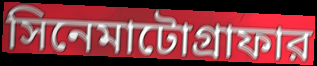
সিনেমাটোগ্রাফার